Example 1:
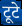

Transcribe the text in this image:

टूटे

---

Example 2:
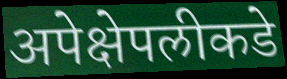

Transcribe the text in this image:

अपेक्षेपलीकडे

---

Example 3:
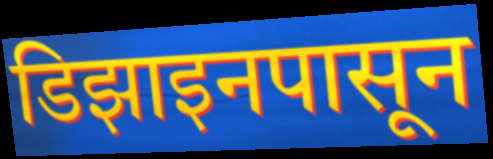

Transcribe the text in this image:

डिझाइनपासून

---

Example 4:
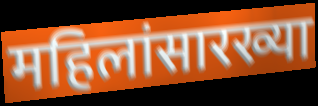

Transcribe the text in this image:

महिलांसारख्या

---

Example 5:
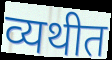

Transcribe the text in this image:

व्यथीत